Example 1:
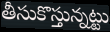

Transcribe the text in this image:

తీసుకొస్తున్నట్టు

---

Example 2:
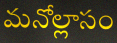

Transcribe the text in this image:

మనోల్లాసం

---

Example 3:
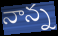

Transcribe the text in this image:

నాన్న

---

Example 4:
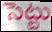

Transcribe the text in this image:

సెట్టు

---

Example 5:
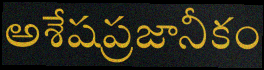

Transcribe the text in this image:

అశేషప్రజానీకం